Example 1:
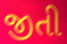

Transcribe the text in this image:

જીતી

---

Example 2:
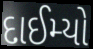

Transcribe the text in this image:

દાઈમ્યો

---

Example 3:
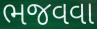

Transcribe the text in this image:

ભજવવા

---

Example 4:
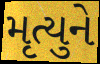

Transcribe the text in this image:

મૃત્યુને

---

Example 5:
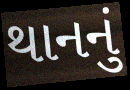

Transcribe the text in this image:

થાનનું